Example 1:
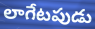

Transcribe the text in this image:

లాగేటపుడు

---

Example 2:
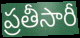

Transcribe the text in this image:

ప్రతీసారీ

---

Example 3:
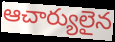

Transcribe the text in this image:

ఆచార్యులైన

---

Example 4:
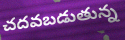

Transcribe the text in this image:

చదవబడుతున్న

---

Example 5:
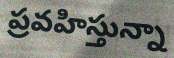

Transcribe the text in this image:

ప్రవహిస్తున్నా